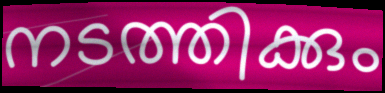
നടത്തിക്കും